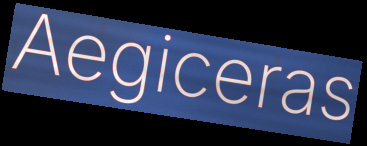
Aegiceras